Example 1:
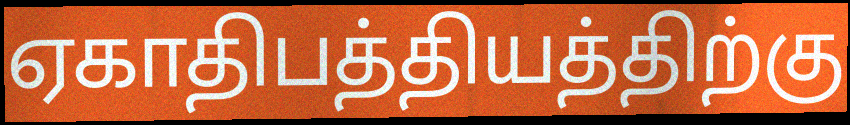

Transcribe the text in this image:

ஏகாதிபத்தியத்திற்கு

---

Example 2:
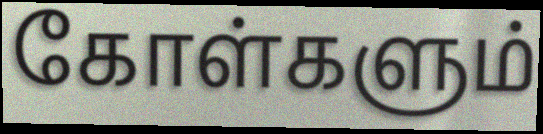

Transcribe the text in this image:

கோள்களும்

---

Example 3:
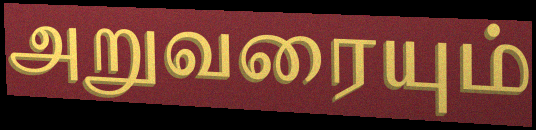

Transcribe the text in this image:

அறுவரையும்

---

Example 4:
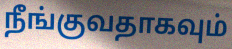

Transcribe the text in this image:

நீங்குவதாகவும்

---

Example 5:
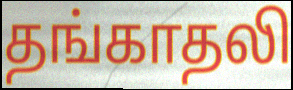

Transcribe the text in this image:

தங்காதலி